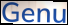
Genu